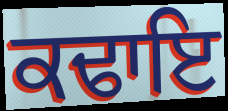
ਕਢਾਇ